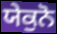
ਯੇਕੁਨੋ